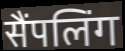
सैंपलिंग